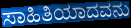
ಸಾಹಿತಿಯಾದವನು